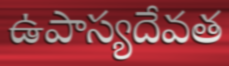
ఉపాస్యదేవత